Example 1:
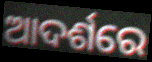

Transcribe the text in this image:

ଆଦର୍ଶରେ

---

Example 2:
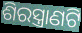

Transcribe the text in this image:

ଶିରସ୍ତ୍ରାଣଟି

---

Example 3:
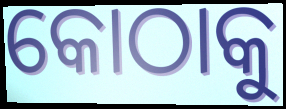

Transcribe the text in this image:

କୋଠାକୁ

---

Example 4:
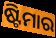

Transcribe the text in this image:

ଷ୍ଟିମାର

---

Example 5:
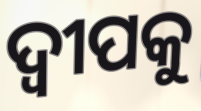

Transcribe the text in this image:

ଦ୍ୱୀପକୁ